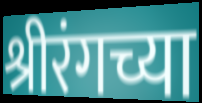
श्रीरंगच्या